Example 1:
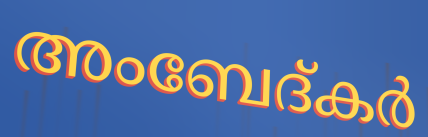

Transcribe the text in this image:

അംബേദ്കർ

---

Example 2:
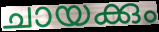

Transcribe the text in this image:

ചായക്കും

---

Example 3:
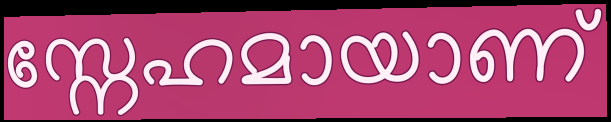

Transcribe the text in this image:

സ്നേഹമായാണ്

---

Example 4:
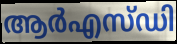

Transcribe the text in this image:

ആർഎസ്ഡി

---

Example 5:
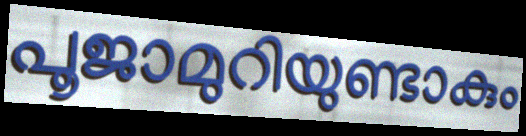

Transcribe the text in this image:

പൂജാമുറിയുണ്ടാകും